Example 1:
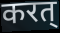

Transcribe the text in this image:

करत्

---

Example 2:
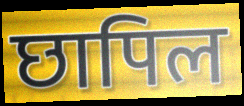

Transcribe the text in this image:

छापिल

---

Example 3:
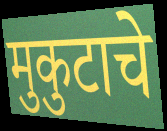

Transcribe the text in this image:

मुकुटाचे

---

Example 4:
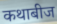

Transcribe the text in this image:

कथाबीज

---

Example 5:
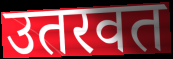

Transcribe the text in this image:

उतरवत